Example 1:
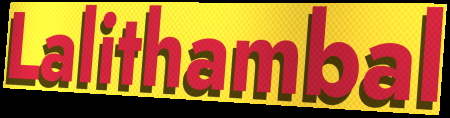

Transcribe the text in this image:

Lalithambal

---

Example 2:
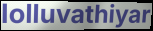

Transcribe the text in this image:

lolluvathiyar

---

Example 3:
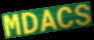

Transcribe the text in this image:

MDACS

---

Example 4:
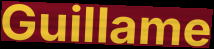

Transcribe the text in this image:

Guillame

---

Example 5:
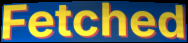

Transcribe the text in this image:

Fetched